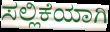
ಸಲ್ಲಿಕೆಯಾಗಿ